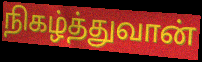
நிகழ்த்துவான்